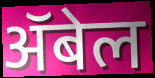
ॲबेल